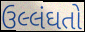
ઉલ્લંઘતો